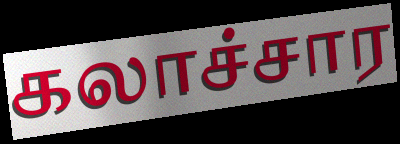
கலாச்சார